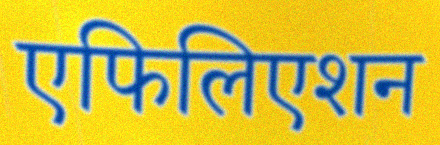
एफिलिएशन